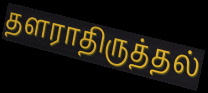
தளராதிருத்தல்